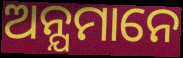
ଅନ୍ଯମାନେ